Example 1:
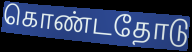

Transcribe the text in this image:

கொண்டதோடு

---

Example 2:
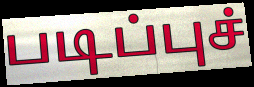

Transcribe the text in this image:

படிப்புச்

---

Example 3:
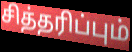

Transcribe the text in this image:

சித்தரிப்பும்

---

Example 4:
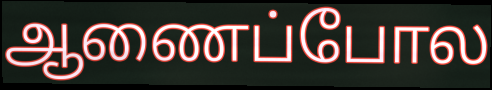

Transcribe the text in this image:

ஆணைப்போல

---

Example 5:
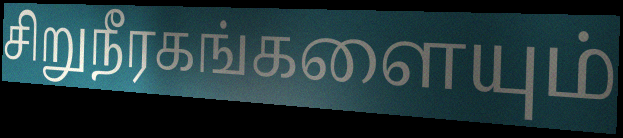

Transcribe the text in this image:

சிறுநீரகங்களையும்